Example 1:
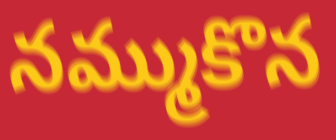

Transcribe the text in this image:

నమ్ముకొన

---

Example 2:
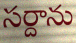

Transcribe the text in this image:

సర్దాను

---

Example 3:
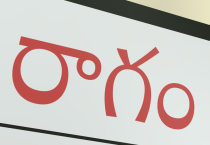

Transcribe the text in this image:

రాగం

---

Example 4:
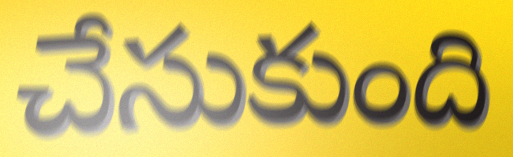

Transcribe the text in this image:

చేసుకుంది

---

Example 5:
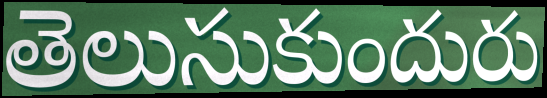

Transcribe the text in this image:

తెలుసుకుందురు